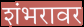
शंभरावर